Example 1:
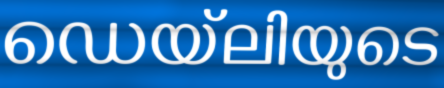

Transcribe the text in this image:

ഡെയ്‌ലിയുടെ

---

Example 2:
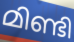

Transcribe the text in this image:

മിണ്ടി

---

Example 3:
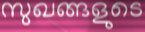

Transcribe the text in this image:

സുഖങ്ങളുടെ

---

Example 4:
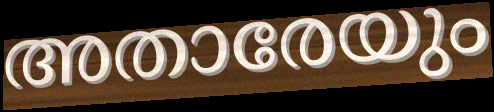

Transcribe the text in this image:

അതാരേയും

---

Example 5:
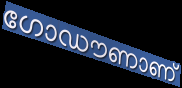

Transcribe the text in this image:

ഗോഡൗണാണ്